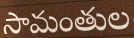
సామంతుల